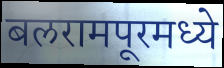
बलरामपूरमध्ये